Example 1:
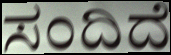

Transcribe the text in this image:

ಸಂದಿದೆ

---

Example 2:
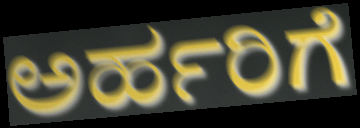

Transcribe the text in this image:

ಅರ್ಹರಿಗೆ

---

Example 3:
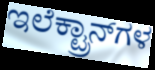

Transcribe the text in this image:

ಇಲೆಕ್ಟ್ರಾನ್‍ಗಳ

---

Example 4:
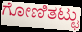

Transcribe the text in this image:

ಗೋಣಿತಟ್ಟು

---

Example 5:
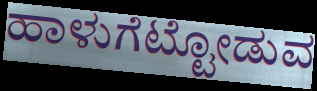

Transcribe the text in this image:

ಹಾಳುಗೆಟ್ಟೋಡುವ